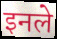
इनले